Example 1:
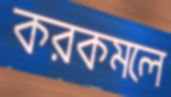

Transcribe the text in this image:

করকমলে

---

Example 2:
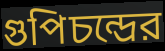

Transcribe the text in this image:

গুপিচন্দ্রের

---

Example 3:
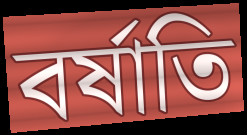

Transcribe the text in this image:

বর্ষাতি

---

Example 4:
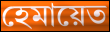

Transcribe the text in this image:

হেমায়েত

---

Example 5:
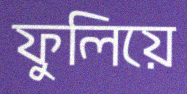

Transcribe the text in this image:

ফুলিয়ে